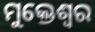
ମୁକ୍ତେଶ୍ଵର